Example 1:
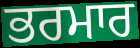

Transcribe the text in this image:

ਭਰਮਾਰ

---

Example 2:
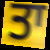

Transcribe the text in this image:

ਤਾ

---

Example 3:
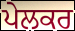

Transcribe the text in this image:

ਪੇਲਕਰ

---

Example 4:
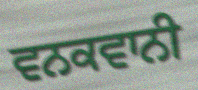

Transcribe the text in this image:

ਵਨਕਵਾਨੀ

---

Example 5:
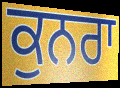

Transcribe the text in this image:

ਕੁਨਰਾ